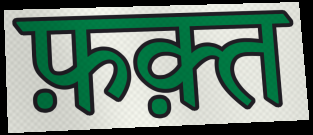
फ़क़्त